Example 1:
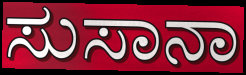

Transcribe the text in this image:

ಸುಸಾನಾ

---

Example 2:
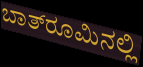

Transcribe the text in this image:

ಬಾತ್‌ರೂಮಿನಲ್ಲಿ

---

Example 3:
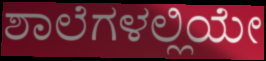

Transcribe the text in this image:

ಶಾಲೆಗಳಲ್ಲಿಯೇ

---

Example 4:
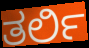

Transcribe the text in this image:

ತರ್ಲಿ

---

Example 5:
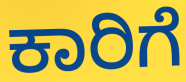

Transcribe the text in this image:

ಕಾರಿಗೆ